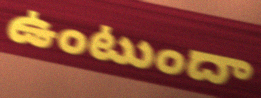
ఉంటుందా